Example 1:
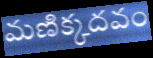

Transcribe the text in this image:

మణిక్కదవం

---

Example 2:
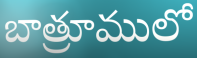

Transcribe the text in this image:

బాత్రూములో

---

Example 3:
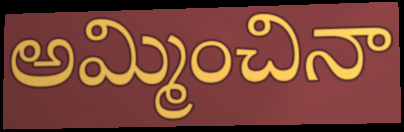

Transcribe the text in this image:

అమ్మించినా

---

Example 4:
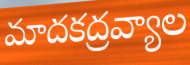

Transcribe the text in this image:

మాదకద్రవ్యాల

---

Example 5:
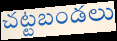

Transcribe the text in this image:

చట్టబండలు